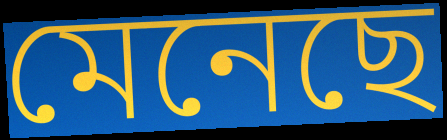
মেনেছে